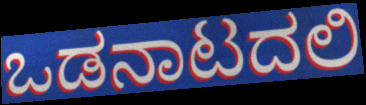
ಒಡನಾಟದಲಿ